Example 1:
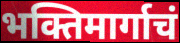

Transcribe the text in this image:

भक्तिमार्गाचं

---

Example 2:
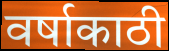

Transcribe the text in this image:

वर्षाकाठी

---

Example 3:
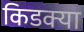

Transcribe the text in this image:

किडक्या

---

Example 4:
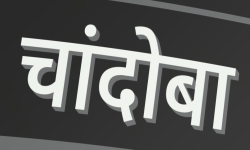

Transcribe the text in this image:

चांदोबा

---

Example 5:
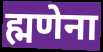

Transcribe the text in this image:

ह्मणेना